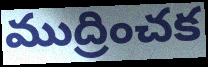
ముద్రించక